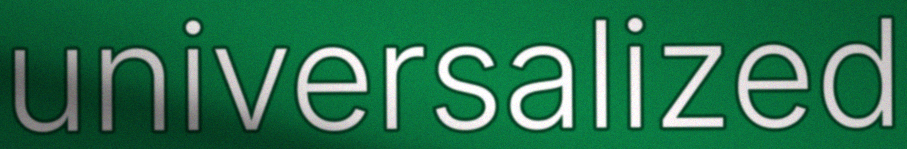
universalized